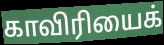
காவிரியைக்